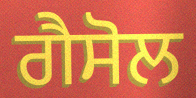
ਗੈਸੋਲ